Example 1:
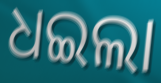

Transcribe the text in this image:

ଧଇଲା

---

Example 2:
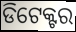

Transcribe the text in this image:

ଡିଟେକ୍ଟର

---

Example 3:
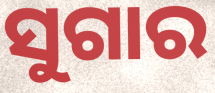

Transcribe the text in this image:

ସୁଗାର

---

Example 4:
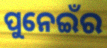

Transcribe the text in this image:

ପୁନେଇଁର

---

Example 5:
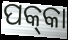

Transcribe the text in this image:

ପକ୍‌କା